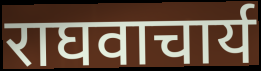
राघवाचार्य